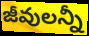
జీవులన్నీ